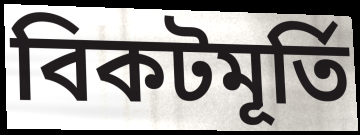
বিকটমূর্তি